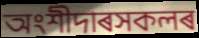
অংশীদাৰসকলৰ